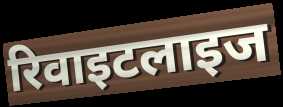
रिवाइटलाइज